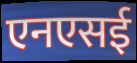
एनएसई